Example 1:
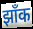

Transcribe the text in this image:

झाँक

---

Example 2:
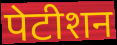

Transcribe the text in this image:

पेटीशन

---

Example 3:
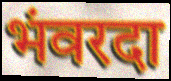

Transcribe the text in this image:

भंवरदा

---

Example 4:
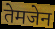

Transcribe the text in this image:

तेमजेन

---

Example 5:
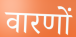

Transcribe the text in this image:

वारणों